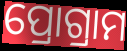
ପ୍ରୋଗ୍ରାମ